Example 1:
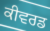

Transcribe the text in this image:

ਕੀਵਰਡ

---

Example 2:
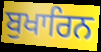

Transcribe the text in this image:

ਬੁਖਾਰਿਨ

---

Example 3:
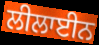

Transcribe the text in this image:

ਲੀਲਾਈਨ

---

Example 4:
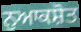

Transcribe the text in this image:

ਨੁਆਕਸ਼ੋਤ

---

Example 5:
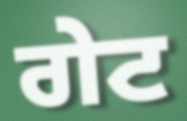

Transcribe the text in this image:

ਗੇਟ